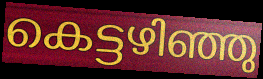
കെട്ടഴിഞ്ഞു